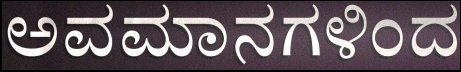
ಅವಮಾನಗಳಿಂದ